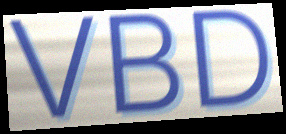
VBD